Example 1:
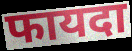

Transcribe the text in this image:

फायदा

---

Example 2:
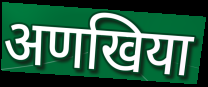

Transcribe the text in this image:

अणखिया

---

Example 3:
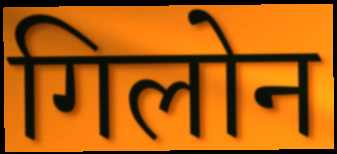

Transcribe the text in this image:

गिलोन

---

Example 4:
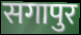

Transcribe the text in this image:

सगापुर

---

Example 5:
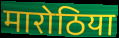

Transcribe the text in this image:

मारोठिया